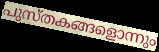
പുസ്തകങ്ങളൊന്നും